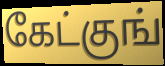
கேட்குங்